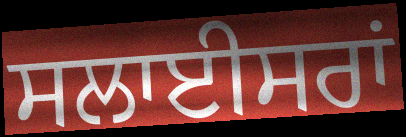
ਸਲਾਈਸਰਾਂ